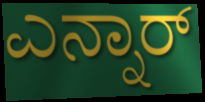
ಎನ್ನಾರ್